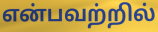
என்பவற்றில்